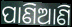
ପାଣିଆଣି